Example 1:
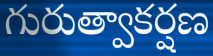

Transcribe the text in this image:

గురుత్వాకర్షణ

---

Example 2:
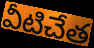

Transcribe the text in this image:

వీటిచేత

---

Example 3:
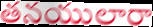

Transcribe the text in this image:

తనయులారా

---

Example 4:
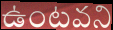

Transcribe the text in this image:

ఉంటవని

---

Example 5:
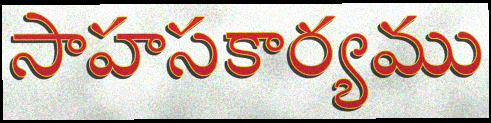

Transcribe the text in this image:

సాహసకార్యము